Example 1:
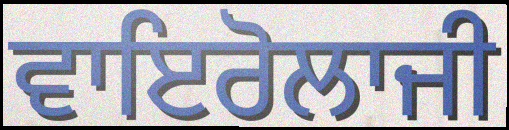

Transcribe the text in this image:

ਵਾਇਰੋਲਾਜੀ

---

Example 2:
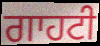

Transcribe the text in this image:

ਗਾਹਟੀ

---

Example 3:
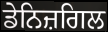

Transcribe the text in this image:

ਡੇਨਿਜ਼ਗਿਲ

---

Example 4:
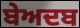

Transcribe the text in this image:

ਬੇਅਦਬ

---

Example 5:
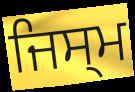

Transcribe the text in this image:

ਜਿਸ੍ਮ